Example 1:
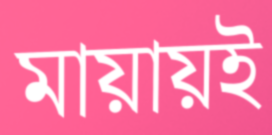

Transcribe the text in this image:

মায়ায়ই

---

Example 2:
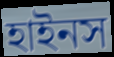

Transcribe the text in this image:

হাইনস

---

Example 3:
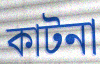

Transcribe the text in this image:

কাটনা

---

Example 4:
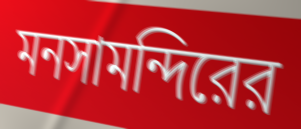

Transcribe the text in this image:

মনসামন্দিরের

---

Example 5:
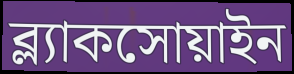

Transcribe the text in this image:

ব্ল্যাকসোয়াইন